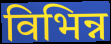
विभिन्न